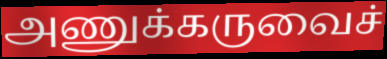
அணுக்கருவைச்